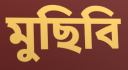
মুছিবি